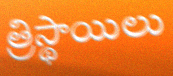
త్రిస్థాయిలు